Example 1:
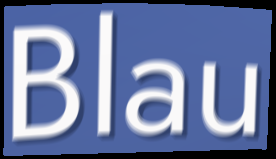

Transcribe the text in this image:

Blau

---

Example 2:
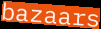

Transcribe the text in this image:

bazaars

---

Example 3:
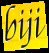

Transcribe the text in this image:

biji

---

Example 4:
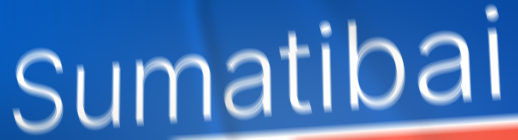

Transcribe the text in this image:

Sumatibai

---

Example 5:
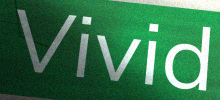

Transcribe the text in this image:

Vivid